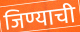
जिण्याची